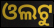
ଓଲଟୁ